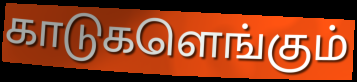
காடுகளெங்கும்